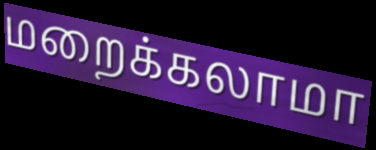
மறைக்கலாமா